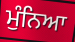
ਮੁੰਨਿਆ